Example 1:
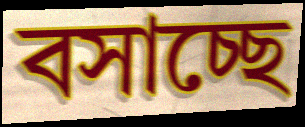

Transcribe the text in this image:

বসাচ্ছে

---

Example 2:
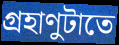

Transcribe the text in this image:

গ্রহাণুটাতে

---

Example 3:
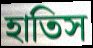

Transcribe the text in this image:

হাতিস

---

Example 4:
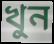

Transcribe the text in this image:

খুন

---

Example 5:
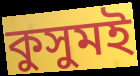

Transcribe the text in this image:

কুসুমই